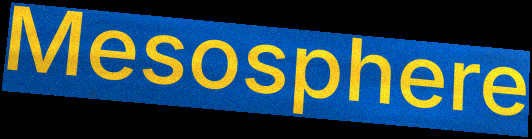
Mesosphere